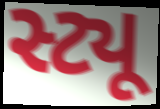
સ્ટ્યૂ